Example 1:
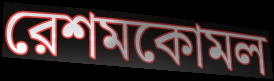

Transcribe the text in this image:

রেশমকোমল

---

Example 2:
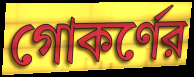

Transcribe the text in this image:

গোকর্ণের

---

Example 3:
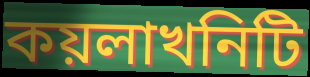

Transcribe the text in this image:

কয়লাখনিটি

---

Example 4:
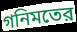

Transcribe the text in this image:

গনিমতের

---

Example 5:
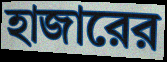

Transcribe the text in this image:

হাজারের